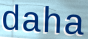
daha